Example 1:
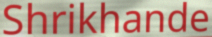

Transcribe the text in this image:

Shrikhande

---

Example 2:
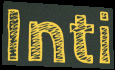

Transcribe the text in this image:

Inti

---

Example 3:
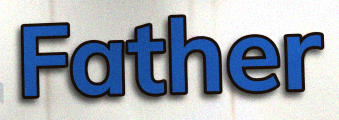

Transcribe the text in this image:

Father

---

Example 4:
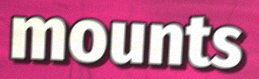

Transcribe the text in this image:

mounts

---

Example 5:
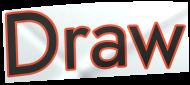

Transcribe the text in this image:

Draw